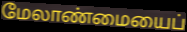
மேலாண்மையைப்